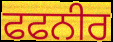
ਫਫਨੀਰ